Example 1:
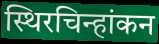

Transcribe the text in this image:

स्थिरचिन्हांकन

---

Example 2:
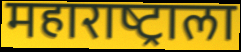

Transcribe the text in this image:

महाराष्ट्राला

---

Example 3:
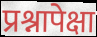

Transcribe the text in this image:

प्रश्नापेक्षा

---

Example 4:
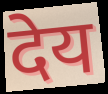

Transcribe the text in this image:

देय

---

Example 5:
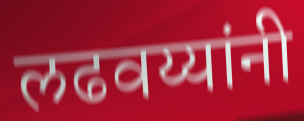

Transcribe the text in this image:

लढवय्यांनी